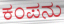
ಕಂಪನು